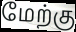
மேற்கு